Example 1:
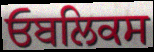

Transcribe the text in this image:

ਓਬਲਿਕਸ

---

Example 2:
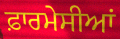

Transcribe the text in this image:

ਫ਼ਾਰਮੇਸੀਆਂ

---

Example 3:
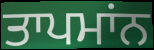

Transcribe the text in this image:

ਤਾਪਮਾਂਨ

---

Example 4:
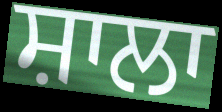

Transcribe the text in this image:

ਸ਼ਾਲਾ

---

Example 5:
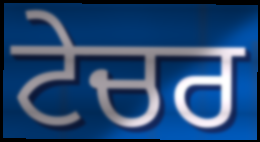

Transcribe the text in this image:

ਟੇਚਰ